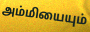
அம்மியையும்